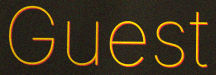
Guest